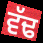
ਵੱਢ